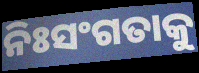
ନିଃସଂଗତାକୁ